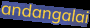
andangalai